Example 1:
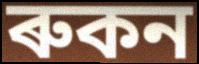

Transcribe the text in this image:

ৰুকন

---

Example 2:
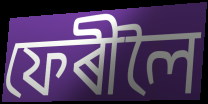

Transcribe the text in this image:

ফেৰীলৈ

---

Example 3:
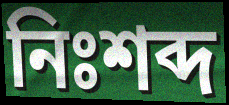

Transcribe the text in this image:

নিঃশব্দ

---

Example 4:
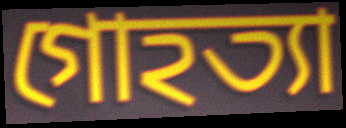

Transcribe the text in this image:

গোহত্যা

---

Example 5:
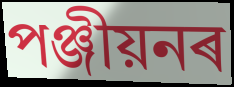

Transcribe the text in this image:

পঞ্জীয়নৰ